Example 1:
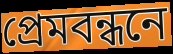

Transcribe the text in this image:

প্রেমবন্ধনে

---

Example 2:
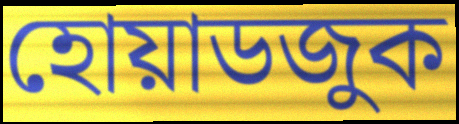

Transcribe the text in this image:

হোয়াডজুক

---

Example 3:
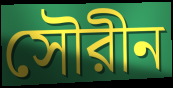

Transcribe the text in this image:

সৌরীন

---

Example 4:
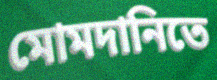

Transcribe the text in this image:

মোমদানিতে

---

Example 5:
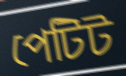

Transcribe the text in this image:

পেটিট